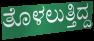
ತೊಳಲುತ್ತಿದ್ದ